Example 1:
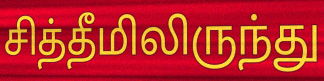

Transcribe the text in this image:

சித்தீமிலிருந்து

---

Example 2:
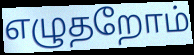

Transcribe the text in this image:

எழுதறோம்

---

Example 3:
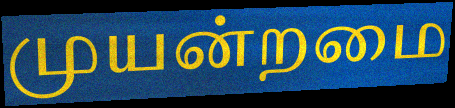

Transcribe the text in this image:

முயன்றமை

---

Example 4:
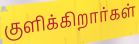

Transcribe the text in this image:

குளிக்கிறார்கள்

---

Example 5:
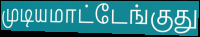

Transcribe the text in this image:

முடியமாட்டேங்குது